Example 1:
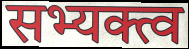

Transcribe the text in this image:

सभ्यक्त्व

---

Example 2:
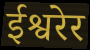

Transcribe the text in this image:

ईश्वरेर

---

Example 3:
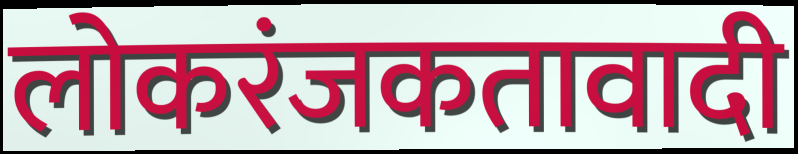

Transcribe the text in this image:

लोकरंजकतावादी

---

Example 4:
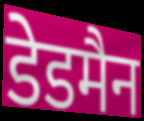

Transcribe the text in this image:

डेडमैन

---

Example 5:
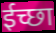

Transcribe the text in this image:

ईच्छा